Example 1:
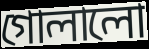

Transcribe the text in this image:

গোলালো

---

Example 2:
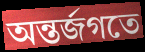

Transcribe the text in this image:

অন্তর্জগতে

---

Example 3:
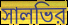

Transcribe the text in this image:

সালভির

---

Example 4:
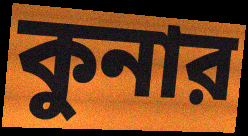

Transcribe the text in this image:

কুনার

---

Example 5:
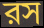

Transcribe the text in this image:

রস